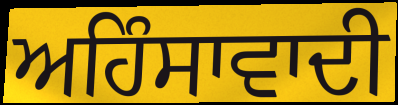
ਅਹਿੰਸਾਵਾਦੀ